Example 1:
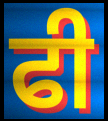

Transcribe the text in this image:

ਫੀ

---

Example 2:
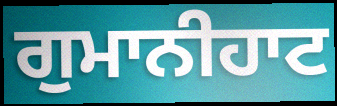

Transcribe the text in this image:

ਗੁਮਾਨੀਹਾਟ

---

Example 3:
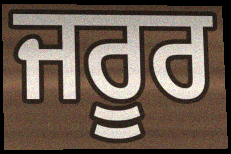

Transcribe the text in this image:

ਜਰੂਰ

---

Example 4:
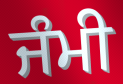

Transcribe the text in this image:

ਜੰਮੀ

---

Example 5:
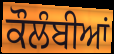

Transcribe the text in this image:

ਕੌਲੰਬੀਆਂ